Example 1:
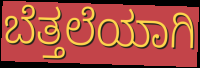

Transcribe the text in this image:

ಬೆತ್ತಲೆಯಾಗಿ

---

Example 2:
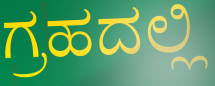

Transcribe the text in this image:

ಗ್ರಹದಲ್ಲಿ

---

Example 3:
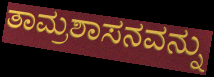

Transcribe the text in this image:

ತಾಮ್ರಶಾಸನವನ್ನು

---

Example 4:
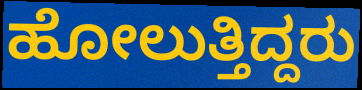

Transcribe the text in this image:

ಹೋಲುತ್ತಿದ್ದರು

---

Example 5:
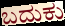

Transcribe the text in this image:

ಬದುಕು